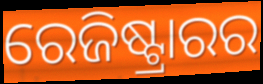
ରେଜିଷ୍ଟ୍ରାରର